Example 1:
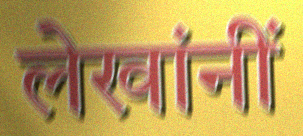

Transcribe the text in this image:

लेखांनीं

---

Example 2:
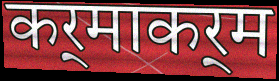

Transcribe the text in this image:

कर्माकर्म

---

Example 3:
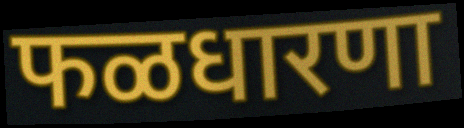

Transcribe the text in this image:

फळधारणा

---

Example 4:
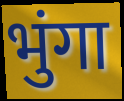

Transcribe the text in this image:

भुंगा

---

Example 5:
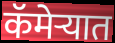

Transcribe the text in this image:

कॅमेऱ्यात